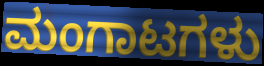
ಮಂಗಾಟಗಳು